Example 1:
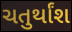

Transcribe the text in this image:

ચતુર્થાંશ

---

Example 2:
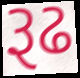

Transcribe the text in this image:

રૂઢ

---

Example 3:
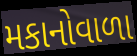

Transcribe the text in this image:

મકાનોવાળા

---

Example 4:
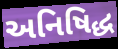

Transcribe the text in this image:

અનિષિદ્ધ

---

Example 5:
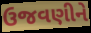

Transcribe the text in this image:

ઉજવણીને